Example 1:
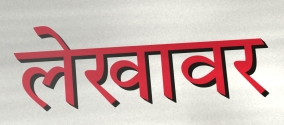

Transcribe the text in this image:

लेखावर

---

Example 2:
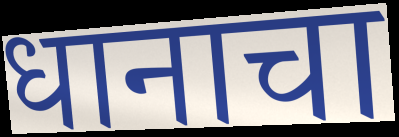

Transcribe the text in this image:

धानाचा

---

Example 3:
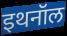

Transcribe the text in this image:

इथनॉल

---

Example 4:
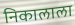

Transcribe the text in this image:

निकालाला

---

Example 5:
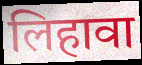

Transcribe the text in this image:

लिहावा